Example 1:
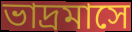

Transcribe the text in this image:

ভাদ্রমাসে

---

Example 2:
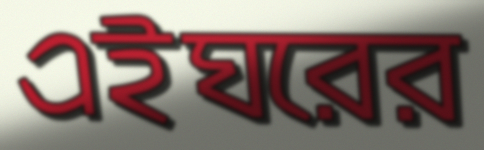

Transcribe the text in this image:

এইঘরের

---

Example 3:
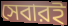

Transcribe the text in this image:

সেবারই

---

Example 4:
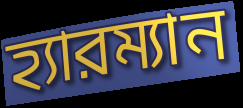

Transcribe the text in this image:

হ্যারম্যান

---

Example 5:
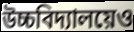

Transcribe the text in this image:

উচ্চবিদ্যালয়েও